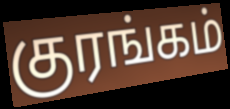
குரங்கம்